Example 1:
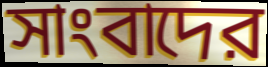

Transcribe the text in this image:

সাংবাদের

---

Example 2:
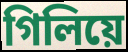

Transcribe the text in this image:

গিলিয়ে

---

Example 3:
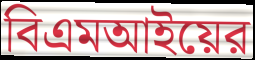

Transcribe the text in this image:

বিএমআইয়ের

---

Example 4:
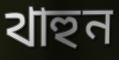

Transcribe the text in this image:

থাহুন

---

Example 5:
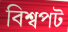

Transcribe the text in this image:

বিশ্বপট